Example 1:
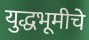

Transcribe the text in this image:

युद्धभूमीचे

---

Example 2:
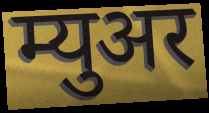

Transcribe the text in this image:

म्युअर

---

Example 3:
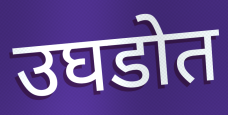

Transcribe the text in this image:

उघडोत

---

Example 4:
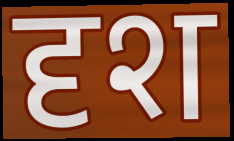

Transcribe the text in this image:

दृश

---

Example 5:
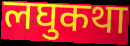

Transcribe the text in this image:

लघुकथा